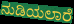
ನುಡಿಯಲಾರೆ